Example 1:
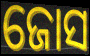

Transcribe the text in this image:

ଜୋସ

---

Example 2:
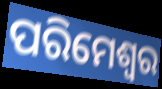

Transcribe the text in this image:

ପରିମେଶ୍ୱର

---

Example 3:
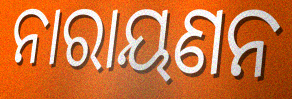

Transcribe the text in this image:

ନାରାୟଣନ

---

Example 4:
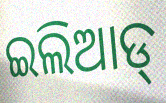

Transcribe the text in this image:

ଇଲିଆଡ୍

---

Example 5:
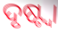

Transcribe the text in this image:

ଦୃଷ୍ଟ୍ବା